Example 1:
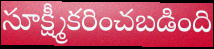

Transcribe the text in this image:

సూక్ష్మీకరించబడింది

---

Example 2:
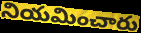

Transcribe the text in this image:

నియమించారు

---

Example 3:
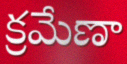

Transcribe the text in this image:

క్రమేణా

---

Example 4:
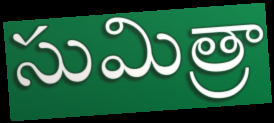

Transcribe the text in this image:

సుమిత్రా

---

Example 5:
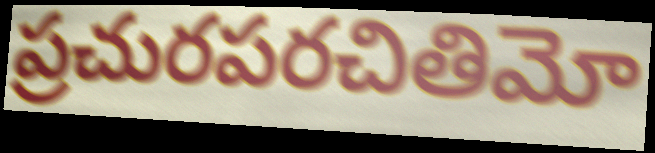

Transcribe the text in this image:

ప్రచురపరచితిమో